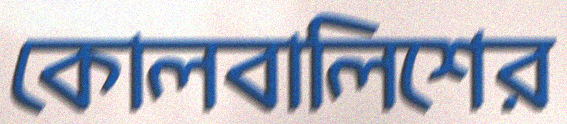
কোলবালিশের